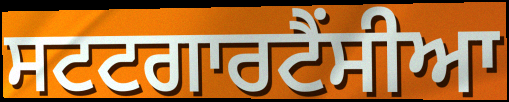
ਸਟਟਗਾਰਟੈਂਸੀਆ